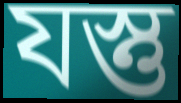
যস্তু